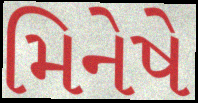
મિનેષે